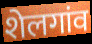
शेलगांव